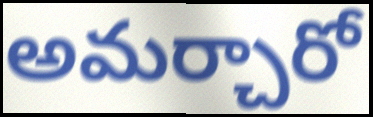
అమర్చారో